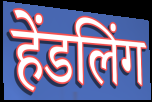
हेंडलिंग